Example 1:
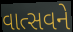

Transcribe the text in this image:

વાત્સવને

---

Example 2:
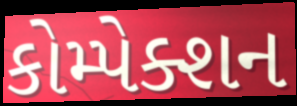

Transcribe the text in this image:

કોમ્પેક્શન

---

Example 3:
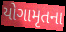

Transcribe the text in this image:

યોગામૃતના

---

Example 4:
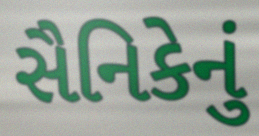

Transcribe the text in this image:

સૈનિકેનું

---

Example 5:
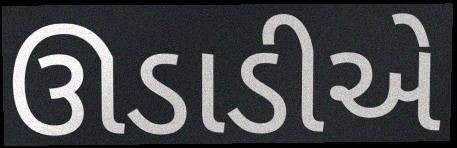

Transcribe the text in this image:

ઊડાડીએ